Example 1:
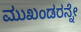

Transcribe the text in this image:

ಮುಖಂಡರನ್ನೇ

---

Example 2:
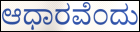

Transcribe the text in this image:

ಆಧಾರವೆಂದು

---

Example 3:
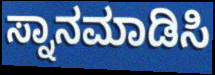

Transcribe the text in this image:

ಸ್ನಾನಮಾಡಿಸಿ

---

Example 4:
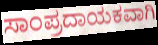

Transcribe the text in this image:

ಸಾಂಪ್ರದಾಯಕವಾಗಿ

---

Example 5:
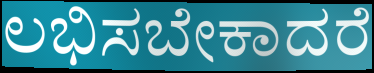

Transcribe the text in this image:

ಲಭಿಸಬೇಕಾದರೆ